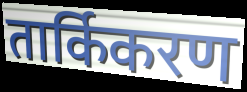
तार्किकरण